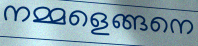
നമ്മളെങ്ങനെ